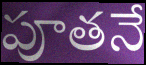
పూతనే